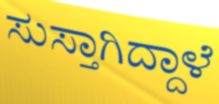
ಸುಸ್ತಾಗಿದ್ದಾಳೆ